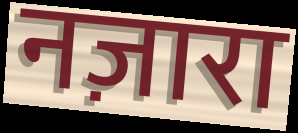
नज़ारा